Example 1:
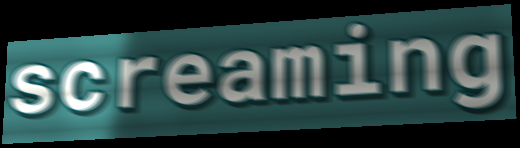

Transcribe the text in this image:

screaming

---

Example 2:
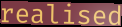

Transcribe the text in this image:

realised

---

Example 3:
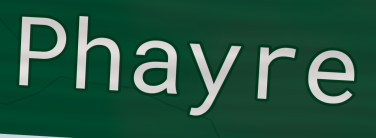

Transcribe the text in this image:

Phayre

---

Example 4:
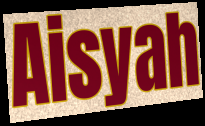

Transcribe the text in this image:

Aisyah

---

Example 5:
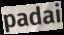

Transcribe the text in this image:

padai